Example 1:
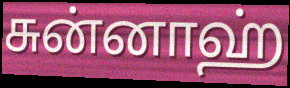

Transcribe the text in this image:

சுன்னாஹ்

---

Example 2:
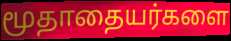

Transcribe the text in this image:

மூதாதையர்களை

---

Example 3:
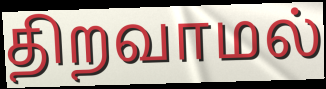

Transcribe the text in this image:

திறவாமல்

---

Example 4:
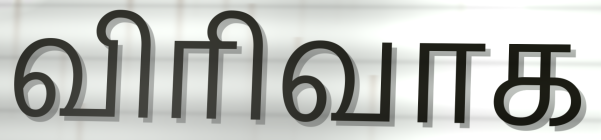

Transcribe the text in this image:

விரிவாக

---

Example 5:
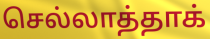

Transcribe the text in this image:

செல்லாத்தாக்